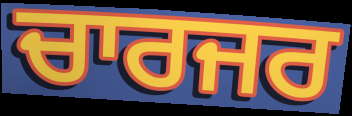
ਚਾਰਜਰ